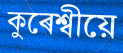
কুৰেশ্বীয়ে